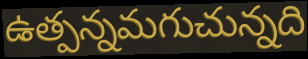
ఉత్పన్నమగుచున్నది